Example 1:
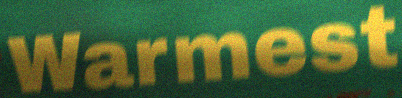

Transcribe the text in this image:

Warmest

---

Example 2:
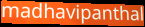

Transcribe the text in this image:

madhavipanthal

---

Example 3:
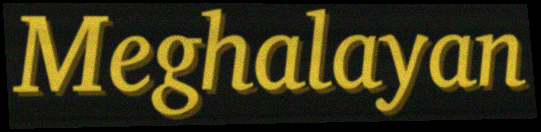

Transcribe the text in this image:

Meghalayan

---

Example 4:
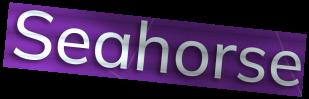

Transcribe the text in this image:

Seahorse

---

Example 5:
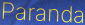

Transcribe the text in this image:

Paranda